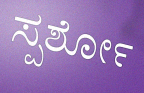
ಸ್ಪರ್ಶೋ